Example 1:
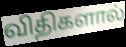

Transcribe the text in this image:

விதிகளால்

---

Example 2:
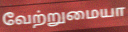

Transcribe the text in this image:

வேற்றுமையா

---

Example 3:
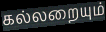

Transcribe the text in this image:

கல்லறையும்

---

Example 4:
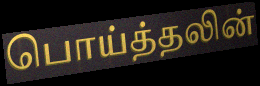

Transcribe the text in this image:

பொய்த்தலின்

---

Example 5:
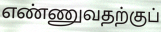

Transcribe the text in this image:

எண்ணுவதற்குப்